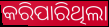
କରିପାରିଥିଲା